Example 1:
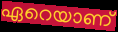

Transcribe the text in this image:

ഏറെയാണ്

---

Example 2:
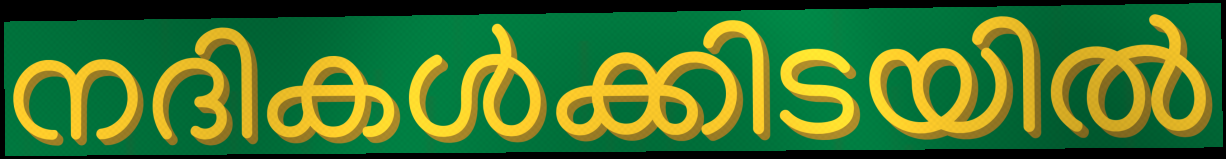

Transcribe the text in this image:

നദികൾക്കിടയിൽ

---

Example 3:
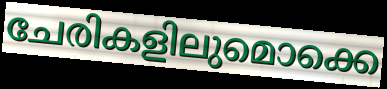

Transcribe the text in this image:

ചേരികളിലുമൊക്കെ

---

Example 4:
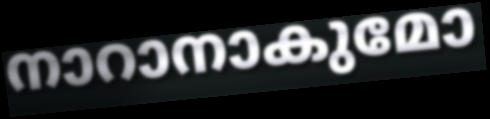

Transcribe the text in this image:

നാറാനാകുമോ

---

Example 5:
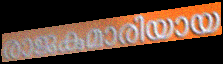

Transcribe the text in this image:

രാജകുമാരിയായ